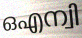
ഒഎന്വി